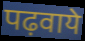
पढ़वाये